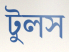
টুলস